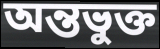
অন্তভুক্ত